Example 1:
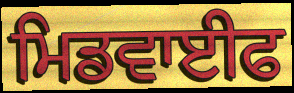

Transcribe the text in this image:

ਮਿਡਵਾਈਫ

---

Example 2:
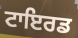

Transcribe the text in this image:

ਟਾਇਰਡ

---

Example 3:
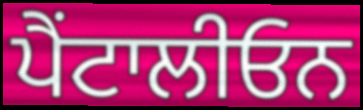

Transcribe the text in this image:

ਪੈਂਟਾਲੀਓਨ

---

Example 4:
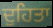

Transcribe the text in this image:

ਦੁਹਿਤਾ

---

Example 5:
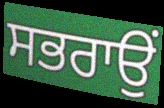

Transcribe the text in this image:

ਸਭਰਾਉਂ